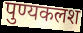
पुण्यकलश